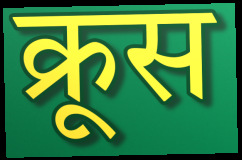
क्रूस